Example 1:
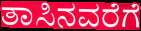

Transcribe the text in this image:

ತಾಸಿನವರೆಗೆ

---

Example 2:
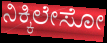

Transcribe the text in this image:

ನಿಕ್ಕಿಲೇಸೋ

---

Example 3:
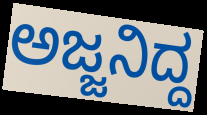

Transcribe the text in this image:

ಅಜ್ಜನಿದ್ದ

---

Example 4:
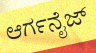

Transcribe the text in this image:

ಆರ್ಗನೈಜ್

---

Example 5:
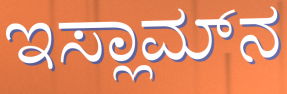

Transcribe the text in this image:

ಇಸ್ಲಾಮ್‌ನ